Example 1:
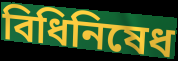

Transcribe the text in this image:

বিধিনিষেধ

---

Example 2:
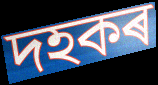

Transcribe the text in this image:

দহকৰ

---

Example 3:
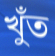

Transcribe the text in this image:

খুঁত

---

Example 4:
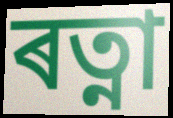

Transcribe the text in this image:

ৰত্না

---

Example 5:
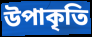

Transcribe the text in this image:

উপাকৃতি